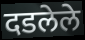
दडलेले